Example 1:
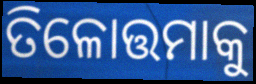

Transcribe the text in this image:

ତିଳୋତ୍ତମାକୁ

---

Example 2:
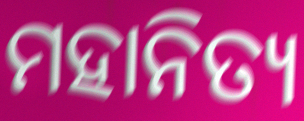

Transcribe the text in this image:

ମହାନିତ୍ୟ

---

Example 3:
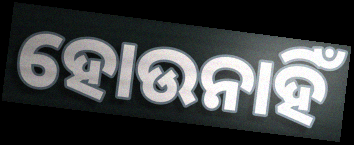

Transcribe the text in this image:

ହୋଉନାହିଁ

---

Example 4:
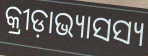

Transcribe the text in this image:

କ୍ରୀଡ଼ାଭ୍ୟାସସ୍ୟ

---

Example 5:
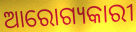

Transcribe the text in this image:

ଆରୋଗ୍ୟକାରୀ